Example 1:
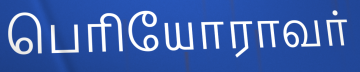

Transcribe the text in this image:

பெரியோராவர்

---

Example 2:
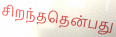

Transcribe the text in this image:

சிறந்ததென்பது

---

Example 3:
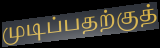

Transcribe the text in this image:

முடிப்பதற்குத்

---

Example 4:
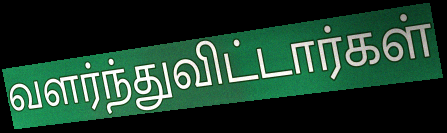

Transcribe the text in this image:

வளர்ந்துவிட்டார்கள்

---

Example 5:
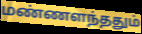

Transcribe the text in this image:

மண்ணளந்ததும்